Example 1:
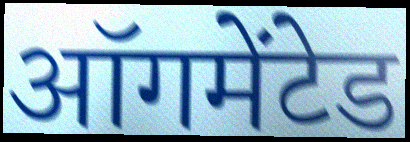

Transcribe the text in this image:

ऑगमेंटेड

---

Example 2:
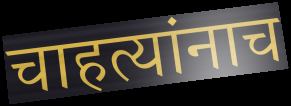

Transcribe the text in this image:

चाहत्यांनाच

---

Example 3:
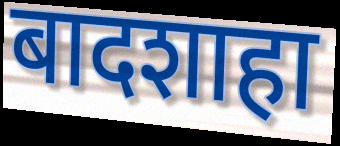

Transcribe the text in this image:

बादशाहा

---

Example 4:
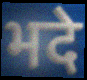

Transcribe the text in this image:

भदे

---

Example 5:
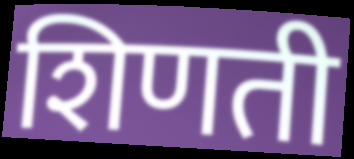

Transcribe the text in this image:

शिणती